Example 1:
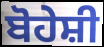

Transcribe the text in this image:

ਬੋਹੇਸ਼ੀ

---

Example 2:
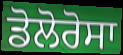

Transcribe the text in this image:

ਡੋਲੋਰੋਸਾ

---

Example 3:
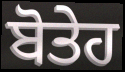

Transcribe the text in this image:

ਬੋਤੇਹ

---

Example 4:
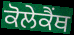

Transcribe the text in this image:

ਕੋਲੇਕੈਂਥ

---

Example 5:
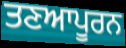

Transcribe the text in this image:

ਤਣਆਪੂਰਨ